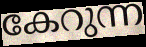
കേറുന്ന